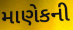
માણેકની